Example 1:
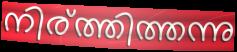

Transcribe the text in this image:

നിര്ത്തിത്തന്നു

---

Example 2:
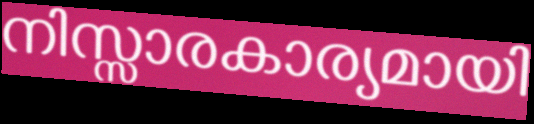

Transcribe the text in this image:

നിസ്സാരകാര്യമായി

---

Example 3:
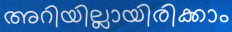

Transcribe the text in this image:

അറിയില്ലായിരിക്കാം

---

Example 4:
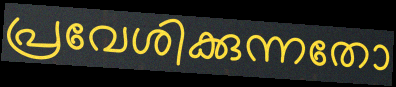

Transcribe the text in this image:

പ്രവേശിക്കുന്നതോ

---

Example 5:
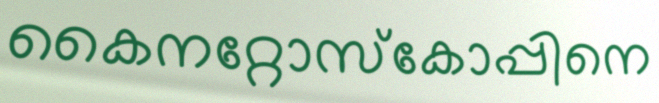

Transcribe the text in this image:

കൈനറ്റോസ്കോപ്പിനെ